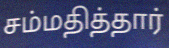
சம்மதித்தார்